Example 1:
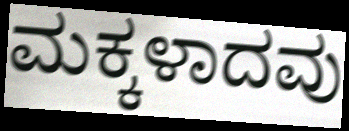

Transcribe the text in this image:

ಮಕ್ಕಳಾದವು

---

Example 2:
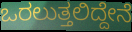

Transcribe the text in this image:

ಒರಲುತ್ತಲಿದ್ದೇನೆ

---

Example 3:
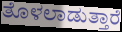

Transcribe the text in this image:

ತೊಳಲಾಡುತ್ತಾರೆ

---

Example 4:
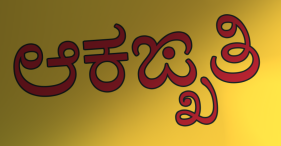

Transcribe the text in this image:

ಆಕಙ್ಖತಿ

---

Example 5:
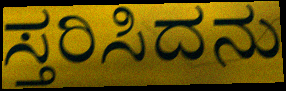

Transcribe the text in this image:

ಸ್ತರಿಸಿದನು